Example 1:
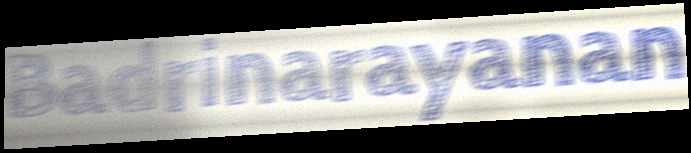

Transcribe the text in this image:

Badrinarayanan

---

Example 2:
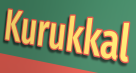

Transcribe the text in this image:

Kurukkal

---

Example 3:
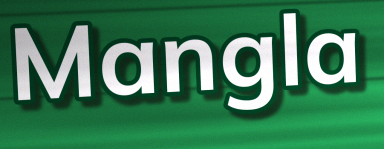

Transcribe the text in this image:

Mangla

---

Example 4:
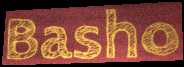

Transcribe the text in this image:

Basho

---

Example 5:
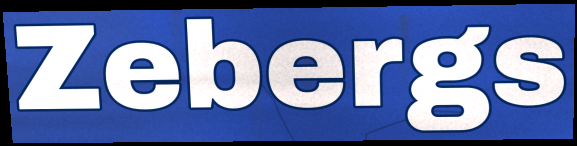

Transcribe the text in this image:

Zebergs